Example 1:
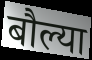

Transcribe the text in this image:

बौल्या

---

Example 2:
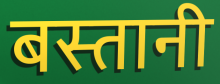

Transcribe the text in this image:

बस्तानी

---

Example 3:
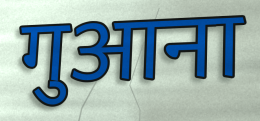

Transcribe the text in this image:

गुआना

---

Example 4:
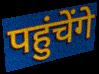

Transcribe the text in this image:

पहुंचेंगे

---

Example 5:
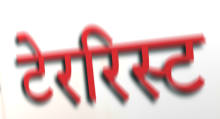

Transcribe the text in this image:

टेररिस्ट